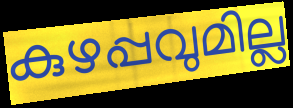
കുഴപ്പവുമില്ല